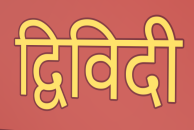
द्विविदी